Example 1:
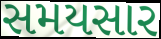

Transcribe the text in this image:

સમયસાર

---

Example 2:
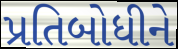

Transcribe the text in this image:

પ્રતિબોધીને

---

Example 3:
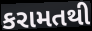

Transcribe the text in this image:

કરામતથી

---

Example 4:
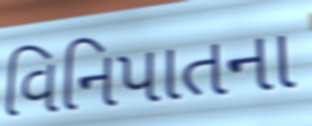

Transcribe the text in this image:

વિનિપાતના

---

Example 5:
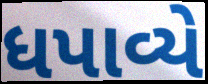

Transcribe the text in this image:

ધપાવ્યે